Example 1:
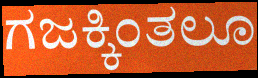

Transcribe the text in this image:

ಗಜಕ್ಕಿಂತಲೂ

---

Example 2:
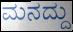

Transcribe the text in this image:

ಮನದ್ದು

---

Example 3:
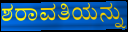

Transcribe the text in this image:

ಶರಾವತಿಯನ್ನು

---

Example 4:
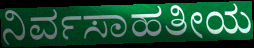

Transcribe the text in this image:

ನಿರ್ವಸಾಹತೀಯ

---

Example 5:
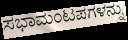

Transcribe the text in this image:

ಸಭಾಮಂಟಪಗಳನ್ನು